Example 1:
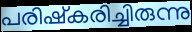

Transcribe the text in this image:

പരിഷ്കരിച്ചിരുന്നു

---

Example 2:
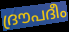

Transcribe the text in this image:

ദ്രൗപദീം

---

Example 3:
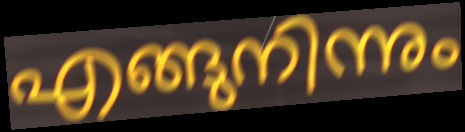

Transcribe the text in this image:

എങ്ങുനിന്നും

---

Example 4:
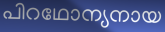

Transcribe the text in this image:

പിറഥോന്യനായ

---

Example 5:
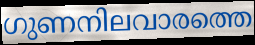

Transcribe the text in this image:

ഗുണനിലവാരത്തെ